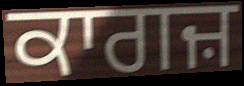
ਕਾਗਜ਼